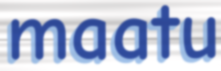
maatu